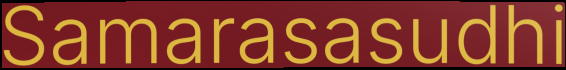
Samarasasudhi